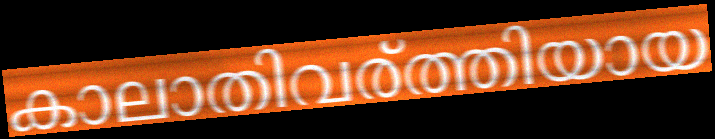
കാലാതിവര്ത്തിയായ